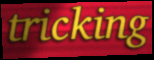
tricking